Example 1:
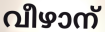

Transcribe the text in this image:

വീഴാന്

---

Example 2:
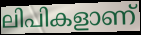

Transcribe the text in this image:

ലിപികളാണ്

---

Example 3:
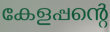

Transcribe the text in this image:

കേളപ്പന്റെ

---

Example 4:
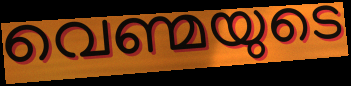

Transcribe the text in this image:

വെണ്മയുടെ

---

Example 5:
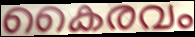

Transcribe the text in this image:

കൈരവം